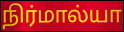
நிர்மால்யா